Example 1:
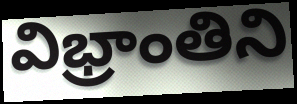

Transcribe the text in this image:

విభ్రాంతిని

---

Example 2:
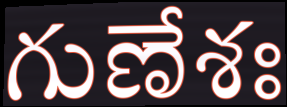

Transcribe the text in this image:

గుణేశః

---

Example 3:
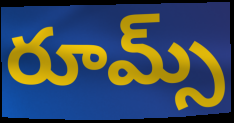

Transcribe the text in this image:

రూమ్స్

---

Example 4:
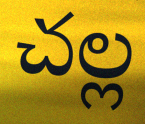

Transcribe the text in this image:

చల్ల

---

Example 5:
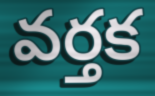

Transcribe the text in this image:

వర్తక